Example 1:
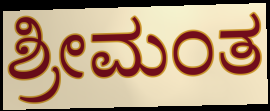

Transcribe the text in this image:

ಶ್ರೀಮಂತ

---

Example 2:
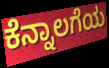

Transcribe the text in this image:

ಕೆನ್ನಾಲಗೆಯ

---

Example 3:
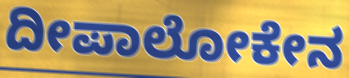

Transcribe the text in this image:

ದೀಪಾಲೋಕೇನ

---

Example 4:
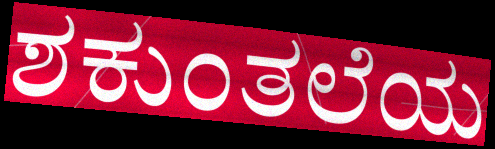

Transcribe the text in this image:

ಶಕುಂತಲೆಯ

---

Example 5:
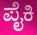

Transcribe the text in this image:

ಪೈಕಿ